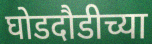
घोडदौडीच्या